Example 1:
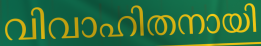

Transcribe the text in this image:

വിവാഹിതനായി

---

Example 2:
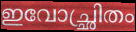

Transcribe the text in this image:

ഇവോച്ഛ്രിതം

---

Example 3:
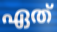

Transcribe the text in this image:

ഏത്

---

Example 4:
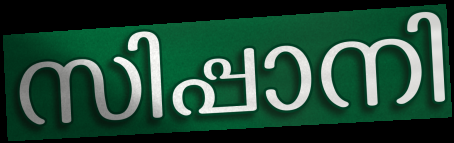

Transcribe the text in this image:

സിപ്പാനി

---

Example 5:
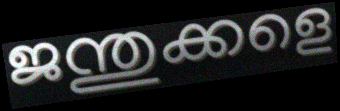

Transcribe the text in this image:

ജന്തുക്കളെ